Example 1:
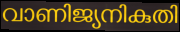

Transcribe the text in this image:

വാണിജ്യനികുതി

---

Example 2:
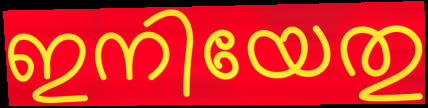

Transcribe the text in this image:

ഇനിയേതു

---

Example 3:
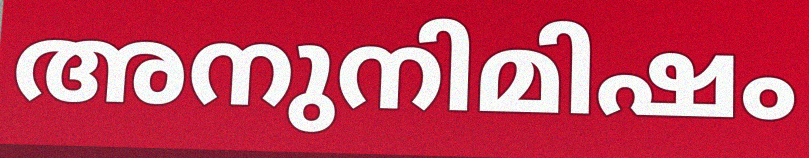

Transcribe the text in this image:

അനുനിമിഷം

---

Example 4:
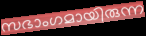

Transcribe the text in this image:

സഭാംഗമായിരുന്ന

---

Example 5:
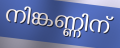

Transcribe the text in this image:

നിങ്കണ്ണിന്